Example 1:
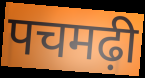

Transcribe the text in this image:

पचमढ़ी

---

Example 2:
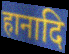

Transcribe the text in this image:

हानादि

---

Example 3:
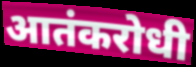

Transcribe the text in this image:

आतंकरोधी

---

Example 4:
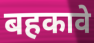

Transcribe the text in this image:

बहकावे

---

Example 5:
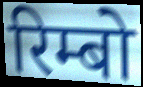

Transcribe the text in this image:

रिम्बो